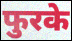
फुरके